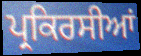
ਪ੍ਰਕਿਰਸੀਆਂ